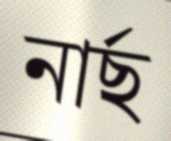
নাৰ্ছ